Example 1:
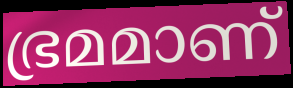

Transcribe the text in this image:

ഭ്രമമാണ്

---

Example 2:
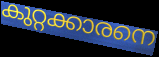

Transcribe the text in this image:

കുറ്റക്കാരനെ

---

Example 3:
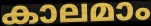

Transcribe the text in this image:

കാലമാം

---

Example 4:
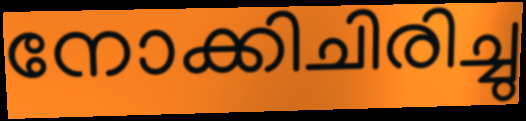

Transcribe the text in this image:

നോക്കിചിരിച്ചു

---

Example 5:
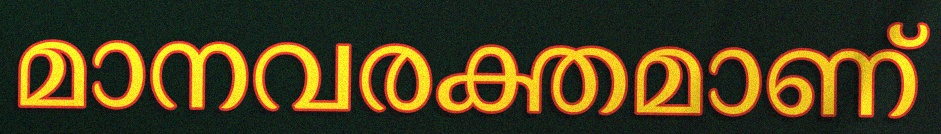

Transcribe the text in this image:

മാനവരക്തമാണ്